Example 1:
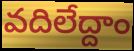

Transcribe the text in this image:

వదిలేద్దాం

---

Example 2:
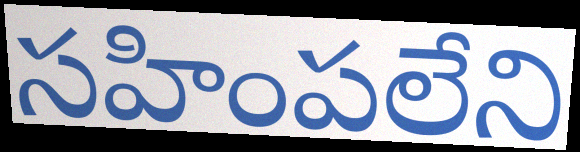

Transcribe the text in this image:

సహింపలేని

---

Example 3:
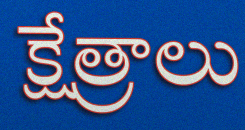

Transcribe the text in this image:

క్షేత్రాలు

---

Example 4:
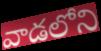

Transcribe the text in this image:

వాడలోని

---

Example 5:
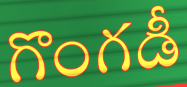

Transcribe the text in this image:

గొంగడీ